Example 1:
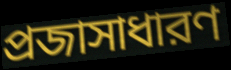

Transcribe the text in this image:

প্রজাসাধারণ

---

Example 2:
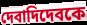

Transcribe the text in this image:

দেবাদিদেবকে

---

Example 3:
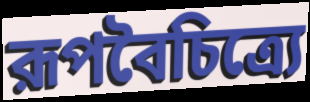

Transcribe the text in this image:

রূপবৈচিত্র্যে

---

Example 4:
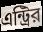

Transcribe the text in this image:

এন্ট্রির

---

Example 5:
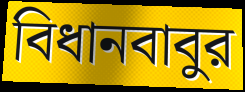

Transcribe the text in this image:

বিধানবাবুর